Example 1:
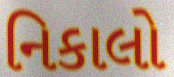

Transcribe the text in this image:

નિકાલો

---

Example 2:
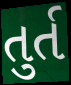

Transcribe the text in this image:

તુર્ત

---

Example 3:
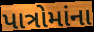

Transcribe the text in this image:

પાત્રોમાંના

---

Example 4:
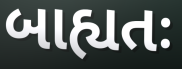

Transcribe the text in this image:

બાહ્યતઃ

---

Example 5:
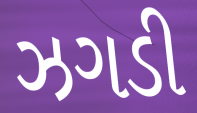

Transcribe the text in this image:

ઝગડી